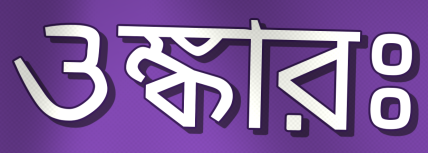
ওঙ্কারঃ